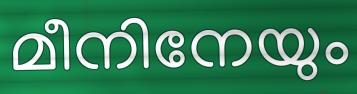
മീനിനേയും